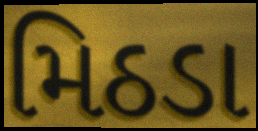
મિઠડા